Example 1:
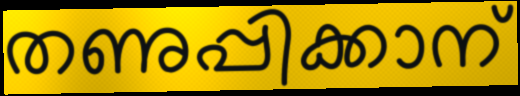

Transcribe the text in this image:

തണുപ്പിക്കാന്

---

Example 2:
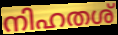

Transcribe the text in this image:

നിഹതശ്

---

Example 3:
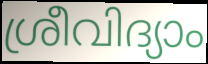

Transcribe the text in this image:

ശ്രീവിദ്യാം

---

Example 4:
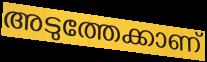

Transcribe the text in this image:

അടുത്തേക്കാണ്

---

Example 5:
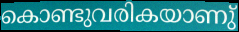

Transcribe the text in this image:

കൊണ്ടുവരികയാണു്